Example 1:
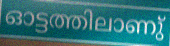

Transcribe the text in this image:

ഓട്ടത്തിലാണു്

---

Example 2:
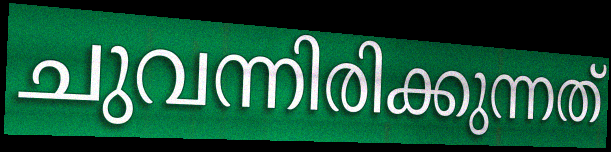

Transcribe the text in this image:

ചുവന്നിരിക്കുന്നത്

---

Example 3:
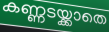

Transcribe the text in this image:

കണ്ണടയ്ക്കാതെ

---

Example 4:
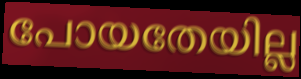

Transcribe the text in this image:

പോയതേയില്ല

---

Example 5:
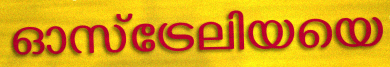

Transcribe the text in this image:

ഓസ്ട്രേലിയയെ